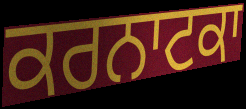
ਕਰਨਾਟਕਾ